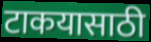
टाकयासाठी